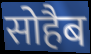
सोहैब